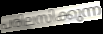
പരിലസിക്കുന്ന